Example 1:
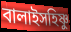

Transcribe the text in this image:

বালাইসহিষ্ণু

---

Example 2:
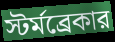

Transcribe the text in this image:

স্টর্মব্রেকার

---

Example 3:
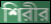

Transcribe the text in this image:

শিরীর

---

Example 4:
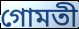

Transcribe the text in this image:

গোমতী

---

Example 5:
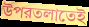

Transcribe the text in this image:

উপরতলাতেই